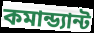
কমান্ড্যান্ট